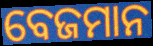
ବେଜମାନ